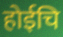
होईचि